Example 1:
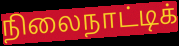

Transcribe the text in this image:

நிலைநாட்டிக்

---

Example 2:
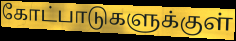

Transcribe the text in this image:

கோட்பாடுகளுக்குள்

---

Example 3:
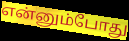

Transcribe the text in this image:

என்னும்போது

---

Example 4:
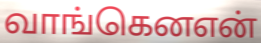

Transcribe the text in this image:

வாங்கெனஎன்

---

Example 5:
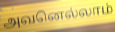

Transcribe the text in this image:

அவனெல்லாம்